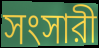
সংসারী